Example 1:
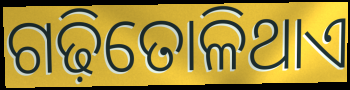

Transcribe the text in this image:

ଗଢ଼ିତୋଳିଥାଏ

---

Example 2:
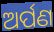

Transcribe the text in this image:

ଅର୍ପଣ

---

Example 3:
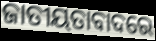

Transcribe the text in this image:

ଜାତୀୟତାବାଦରେ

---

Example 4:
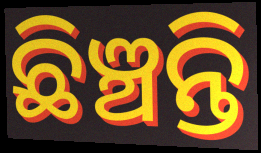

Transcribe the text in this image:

ଛିଞ୍ଚନ୍ତି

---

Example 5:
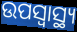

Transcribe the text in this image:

ଉପସ୍ୱାସ୍ଥ୍ୟ